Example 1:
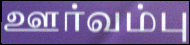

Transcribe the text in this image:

ஊர்வம்பு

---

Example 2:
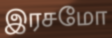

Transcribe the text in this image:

இரசமோ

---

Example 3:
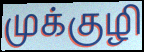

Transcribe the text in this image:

முக்குழி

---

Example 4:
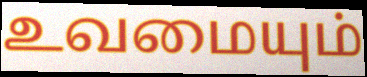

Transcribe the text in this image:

உவமையும்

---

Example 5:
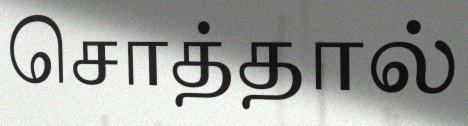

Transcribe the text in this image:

சொத்தால்